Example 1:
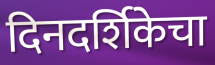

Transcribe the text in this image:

दिनदर्शिकेचा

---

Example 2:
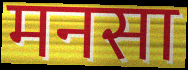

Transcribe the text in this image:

मनसा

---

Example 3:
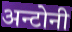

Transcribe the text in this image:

अन्टोनी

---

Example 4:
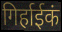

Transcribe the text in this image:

गिर्हाईकं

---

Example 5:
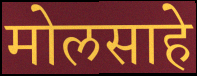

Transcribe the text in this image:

मोलसाहे